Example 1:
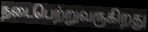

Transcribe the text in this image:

நடைபெற்றுவருகிறது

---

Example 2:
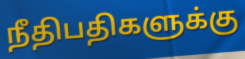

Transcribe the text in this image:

நீதிபதிகளுக்கு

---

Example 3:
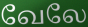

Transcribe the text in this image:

வேலே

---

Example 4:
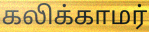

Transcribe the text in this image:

கலிக்காமர்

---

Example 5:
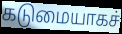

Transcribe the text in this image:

கடுமையாகச்